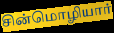
சின்மொழியார்